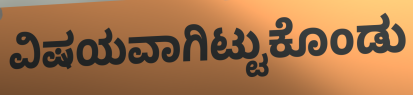
ವಿಷಯವಾಗಿಟ್ಟುಕೊಂಡು